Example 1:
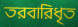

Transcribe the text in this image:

তরবারিধৃত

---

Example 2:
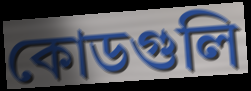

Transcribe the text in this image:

কোডগুলি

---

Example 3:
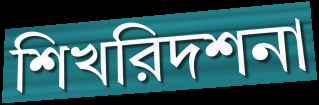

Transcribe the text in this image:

শিখরিদশনা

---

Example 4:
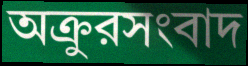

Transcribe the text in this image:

অক্রুরসংবাদ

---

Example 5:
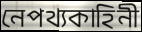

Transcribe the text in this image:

নেপথ্যকাহিনী